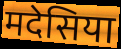
मदेसिया